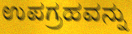
ಉಪಗ್ರಹವನ್ನು